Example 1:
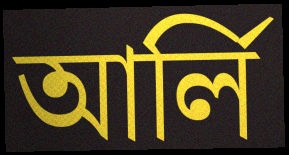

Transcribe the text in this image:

আৰ্লি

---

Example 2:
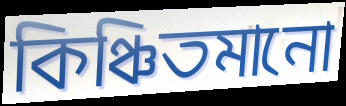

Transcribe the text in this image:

কিঞ্চিতমানো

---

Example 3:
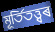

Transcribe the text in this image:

মূৰ্তিতত্ত্বৰ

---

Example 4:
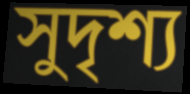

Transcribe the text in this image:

সুদৃশ্য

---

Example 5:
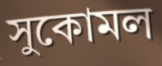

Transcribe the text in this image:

সুকোমল